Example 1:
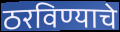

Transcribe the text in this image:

ठरविण्याचे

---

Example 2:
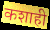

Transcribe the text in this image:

कशाही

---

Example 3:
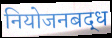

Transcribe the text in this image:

नियोजनबद्ध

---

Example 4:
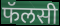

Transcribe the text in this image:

फॅलसी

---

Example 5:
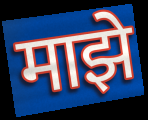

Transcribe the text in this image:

माझे